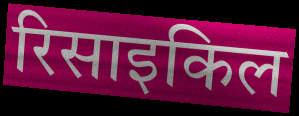
रिसाइकिल